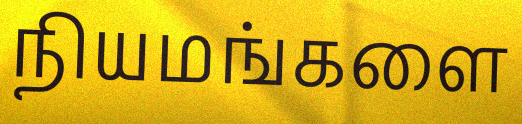
நியமங்களை